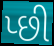
પ્છી